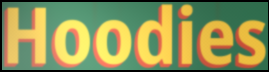
Hoodies